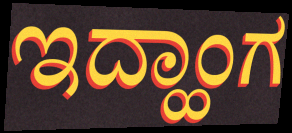
ಇದ್ಹಾಂಗ